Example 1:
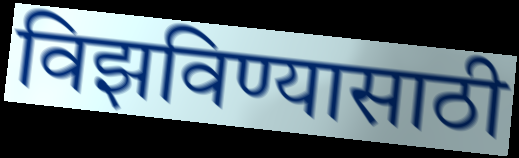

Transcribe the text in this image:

विझविण्यासाठी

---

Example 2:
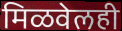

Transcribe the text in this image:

मिळवेलही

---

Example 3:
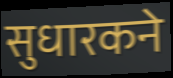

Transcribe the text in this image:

सुधारकने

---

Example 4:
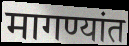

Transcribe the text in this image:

मागण्यांत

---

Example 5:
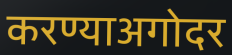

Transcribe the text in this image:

करण्याअगोदर